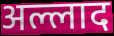
अल्लाद